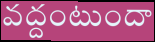
వద్దంటుందా